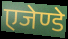
एजेण्डे